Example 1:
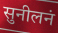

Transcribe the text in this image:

सुनीलनं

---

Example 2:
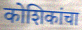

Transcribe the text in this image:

कोशिकांचा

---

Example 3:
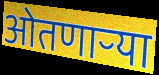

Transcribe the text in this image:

ओतणाऱ्या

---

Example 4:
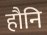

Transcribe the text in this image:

हौनि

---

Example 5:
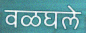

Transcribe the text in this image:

वळघले